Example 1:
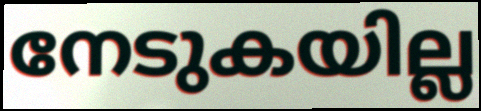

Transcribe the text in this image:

നേടുകയില്ല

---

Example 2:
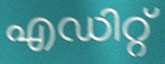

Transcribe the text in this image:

എഡിറ്റ്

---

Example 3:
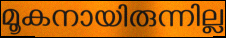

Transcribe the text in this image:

മൂകനായിരുന്നില്ല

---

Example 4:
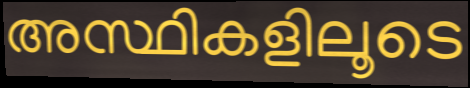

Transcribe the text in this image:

അസ്ഥികളിലൂടെ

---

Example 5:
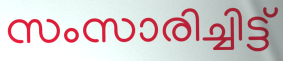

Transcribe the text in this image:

സംസാരിച്ചിട്ട്